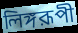
লিঙ্গরূপী